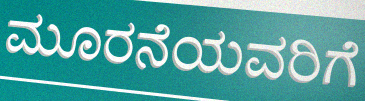
ಮೂರನೆಯವರಿಗೆ